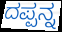
ದಪ್ಪನ್ನ